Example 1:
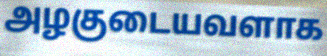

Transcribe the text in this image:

அழகுடையவளாக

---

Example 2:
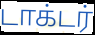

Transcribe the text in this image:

டாக்டர்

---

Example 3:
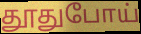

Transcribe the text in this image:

தூதுபோய்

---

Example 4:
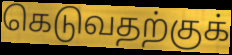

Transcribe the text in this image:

கெடுவதற்குக்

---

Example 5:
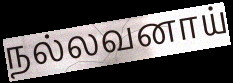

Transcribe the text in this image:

நல்லவனாய்